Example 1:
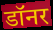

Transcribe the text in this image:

डॉनर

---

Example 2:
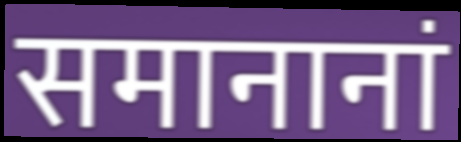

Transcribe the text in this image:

समानानां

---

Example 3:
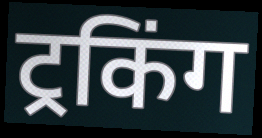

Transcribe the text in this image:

ट्रकिंग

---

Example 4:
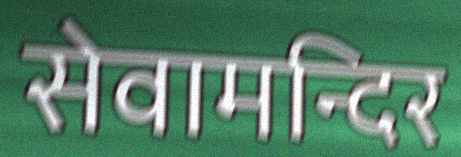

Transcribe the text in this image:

सेवामन्दिर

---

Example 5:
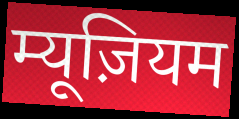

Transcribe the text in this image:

म्यूज़ियम